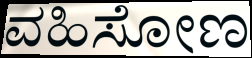
ವಹಿಸೋಣ